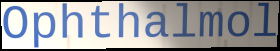
Ophthalmol